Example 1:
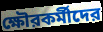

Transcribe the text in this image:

ক্ষৌরকর্মীদের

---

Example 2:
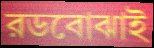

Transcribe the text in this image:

রডবোঝাই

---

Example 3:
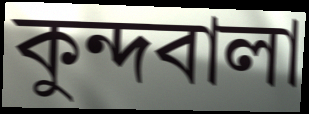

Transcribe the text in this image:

কুন্দবালা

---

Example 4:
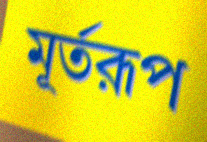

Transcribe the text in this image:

মূর্তরূপ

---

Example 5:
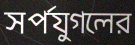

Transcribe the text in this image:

সর্পযুগলের